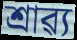
শ্ৰাৱ্য